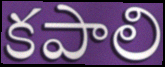
కపాలి